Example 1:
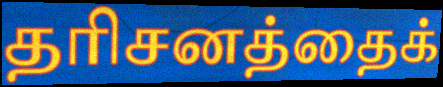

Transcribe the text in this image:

தரிசனத்தைக்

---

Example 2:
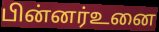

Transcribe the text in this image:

பின்னர்உனை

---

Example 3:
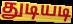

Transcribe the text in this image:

துடியடி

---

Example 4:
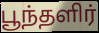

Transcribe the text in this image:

பூந்தளிர்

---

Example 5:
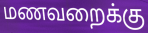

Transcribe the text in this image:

மணவறைக்கு